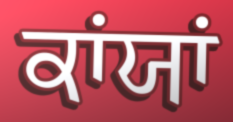
ਕਾਂਯਾਂ